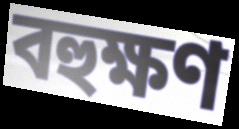
বহুক্ষণ